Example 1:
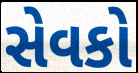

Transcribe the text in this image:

સેવકો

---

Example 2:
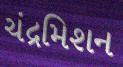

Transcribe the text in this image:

ચંદ્રમિશન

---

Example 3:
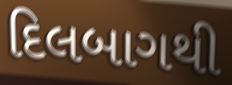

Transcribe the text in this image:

દિલબાગથી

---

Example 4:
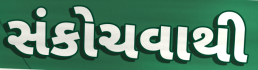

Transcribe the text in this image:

સંકોચવાથી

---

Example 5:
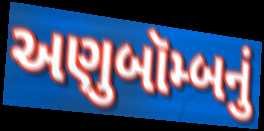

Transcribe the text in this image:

અણુબૉમ્બનું